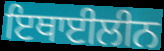
ਇਥਾਈਲੀਨ